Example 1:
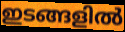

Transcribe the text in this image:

ഇടങ്ങളിൽ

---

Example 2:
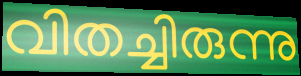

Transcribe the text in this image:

വിതച്ചിരുന്നു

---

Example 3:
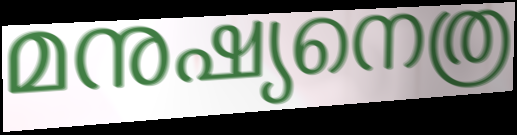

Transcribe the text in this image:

മനുഷ്യനെത്ര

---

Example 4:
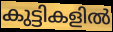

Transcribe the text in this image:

കുട്ടികളിൽ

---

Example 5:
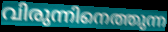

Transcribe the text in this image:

വിരുന്നിനെത്തുന്ന